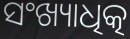
ସଂଖ୍ୟାଧିତ୍କ